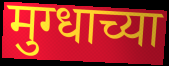
मुग्धाच्या